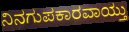
ನಿನಗುಪಕಾರವಾಯ್ತು